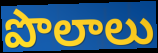
పొలాలు